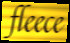
fleece